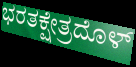
ಭರತಕ್ಷೇತ್ರದೊಳ್